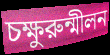
চক্ষুরুন্মীলন